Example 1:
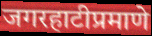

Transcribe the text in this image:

जगरहाटीप्रमाणे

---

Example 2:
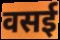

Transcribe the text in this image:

वसई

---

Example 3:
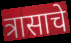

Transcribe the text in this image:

त्रासाचे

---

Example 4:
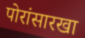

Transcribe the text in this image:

पोरांसारखा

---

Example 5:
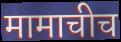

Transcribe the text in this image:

मामाचीच